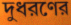
দুধরণের